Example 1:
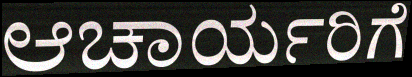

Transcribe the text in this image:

ಆಚಾರ್ಯರಿಗೆ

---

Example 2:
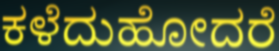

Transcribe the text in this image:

ಕಳೆದುಹೋದರೆ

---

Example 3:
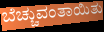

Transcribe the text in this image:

ಬೆಚ್ಚುವಂತಾಯಿತು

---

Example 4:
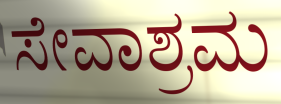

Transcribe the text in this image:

ಸೇವಾಶ್ರಮ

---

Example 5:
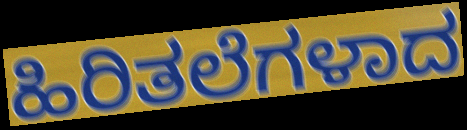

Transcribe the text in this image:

ಹಿರಿತಲೆಗಳಾದ